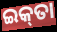
ଇକ୍‌ତା